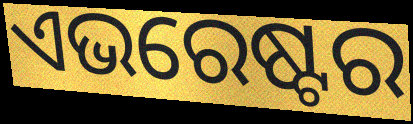
ଏଭରେଷ୍ଟର